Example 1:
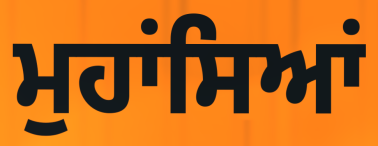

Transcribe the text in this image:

ਮੁਹਾਂਸਿਆਂ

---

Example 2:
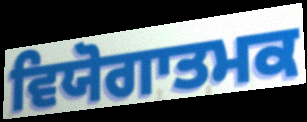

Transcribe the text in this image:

ਵਿਯੋਗਾਤਮਕ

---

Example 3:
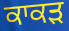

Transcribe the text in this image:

ਕਾਕੜ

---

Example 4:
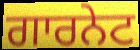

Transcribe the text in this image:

ਗਾਰਨੇਟ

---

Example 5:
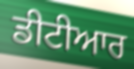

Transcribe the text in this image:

ਡੀਟੀਆਰ